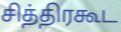
சித்திரகூட